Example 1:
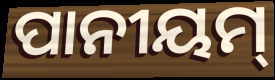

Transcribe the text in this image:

ପାନୀୟମ୍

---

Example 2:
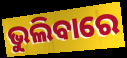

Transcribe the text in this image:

ଭୁଲିବାରେ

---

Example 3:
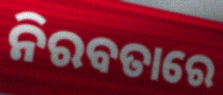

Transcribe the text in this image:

ନିରବତାରେ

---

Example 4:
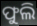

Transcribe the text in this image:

ଫୁଲି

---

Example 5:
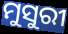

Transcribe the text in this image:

ମୁସୁରୀ